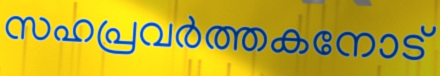
സഹപ്രവർത്തകനോട്